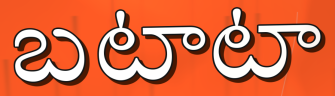
బటాటా